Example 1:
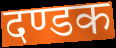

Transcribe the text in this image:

दण्डक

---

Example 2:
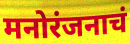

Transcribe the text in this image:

मनोरंजनाचं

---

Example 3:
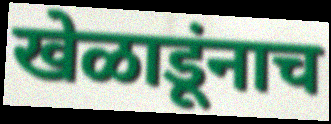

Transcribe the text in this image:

खेळाडूंनाच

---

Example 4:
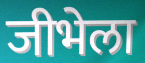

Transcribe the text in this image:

जीभेला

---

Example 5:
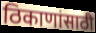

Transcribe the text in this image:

ठिकाणांसाठी